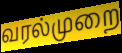
வரல்முறை